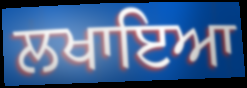
ਲਖਾਇਆ